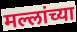
मल्लांच्या